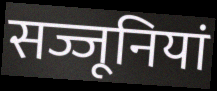
सज्जूनियां